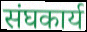
संघकार्य